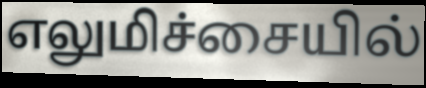
எலுமிச்சையில்